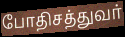
போதிசத்துவர்